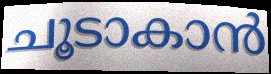
ചൂടാകാൻ